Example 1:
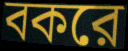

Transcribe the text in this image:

বকরে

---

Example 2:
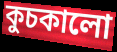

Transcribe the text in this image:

কুচকালো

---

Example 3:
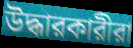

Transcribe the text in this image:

উদ্ধারকারীরা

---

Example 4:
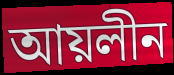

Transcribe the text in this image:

আয়লীন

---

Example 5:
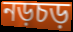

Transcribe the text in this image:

নড়চড়